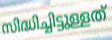
സിദ്ധിച്ചിട്ടുള്ളത്